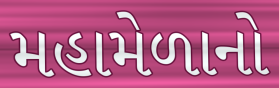
મહામેળાનો